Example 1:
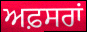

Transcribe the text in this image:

ਅਫ਼ਸਰਾਂ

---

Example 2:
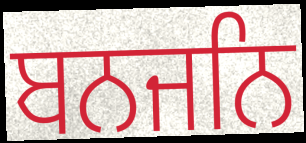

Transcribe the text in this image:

ਬਨਜਨਿ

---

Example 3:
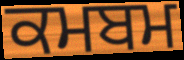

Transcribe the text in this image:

ਕਮਬਮ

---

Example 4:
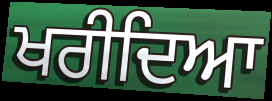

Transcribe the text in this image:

ਖਰੀਦਿਆ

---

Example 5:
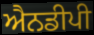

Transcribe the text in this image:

ਐਨਡੀਪੀ